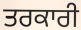
ਤਰਕਾਰੀ